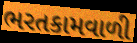
ભરતકામવાળી